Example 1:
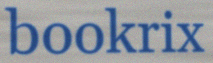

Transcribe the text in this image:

bookrix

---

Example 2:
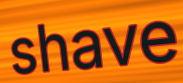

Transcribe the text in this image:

shave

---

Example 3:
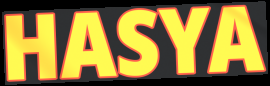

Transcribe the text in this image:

HASYA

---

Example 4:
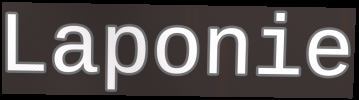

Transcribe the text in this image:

Laponie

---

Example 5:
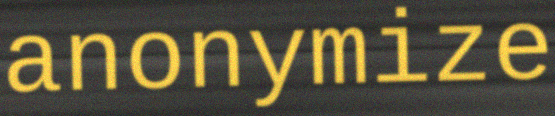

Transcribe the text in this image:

anonymize